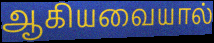
ஆகியவையால்